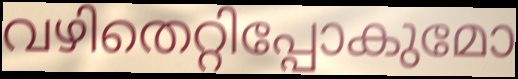
വഴിതെറ്റിപ്പോകുമോ